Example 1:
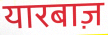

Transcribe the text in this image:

यारबाज़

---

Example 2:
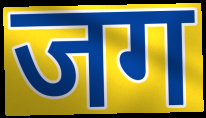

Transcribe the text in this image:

जग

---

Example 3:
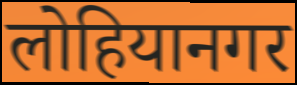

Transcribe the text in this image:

लोहियानगर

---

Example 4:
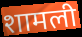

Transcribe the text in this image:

शामली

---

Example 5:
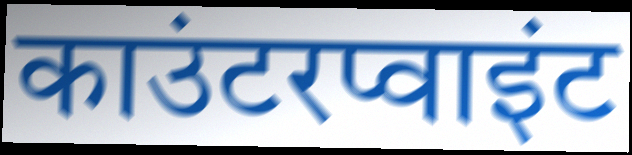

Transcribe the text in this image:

काउंटरप्वाइंट